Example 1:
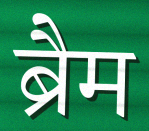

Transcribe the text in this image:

ब्रैम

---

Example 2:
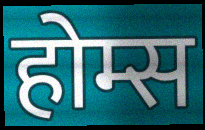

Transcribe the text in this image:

होम्स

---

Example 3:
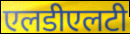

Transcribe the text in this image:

एलडीएलटी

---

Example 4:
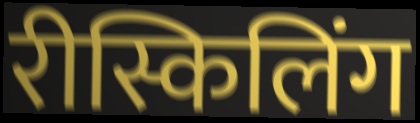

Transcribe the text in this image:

रीस्किलिंग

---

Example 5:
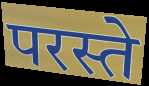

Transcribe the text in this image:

परस्ते